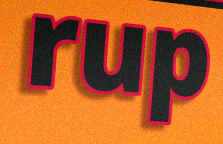
rup